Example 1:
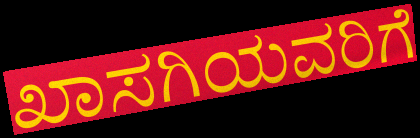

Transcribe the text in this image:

ಖಾಸಗಿಯವರಿಗೆ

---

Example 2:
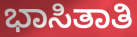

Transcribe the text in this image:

ಭಾಸಿತಾತಿ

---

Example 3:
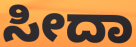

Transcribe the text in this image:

ಸೀದಾ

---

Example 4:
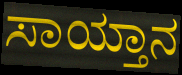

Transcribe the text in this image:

ಸಾಯ್ತಾನ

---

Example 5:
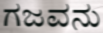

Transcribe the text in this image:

ಗಜವನು